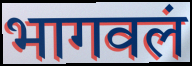
भागवलं